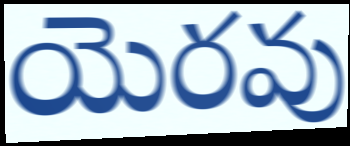
యెరవు